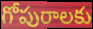
గోపురాలకు